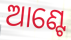
ଆଣ୍ଟେ